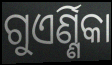
ଗୁଏର୍ଣ୍ଣିକା